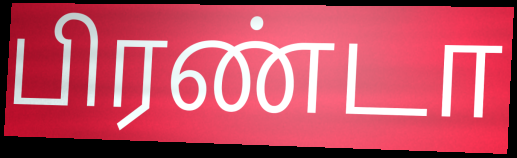
பிரண்டா